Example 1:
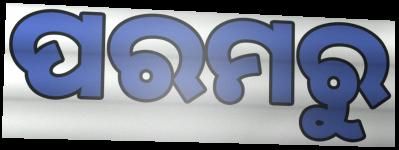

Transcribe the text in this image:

ପରମରୁ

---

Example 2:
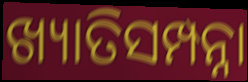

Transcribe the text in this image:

ଖ୍ୟାତିସମ୍ପନ୍ନା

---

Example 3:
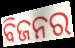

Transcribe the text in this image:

ବିଜନର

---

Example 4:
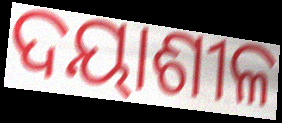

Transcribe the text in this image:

ଦୟାଶୀଳ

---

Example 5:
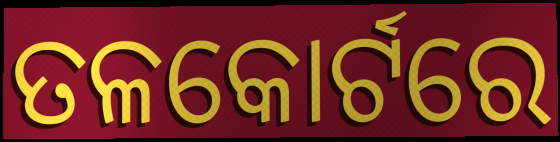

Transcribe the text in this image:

ତଳକୋର୍ଟରେ